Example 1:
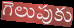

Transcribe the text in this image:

గెలుపుకు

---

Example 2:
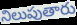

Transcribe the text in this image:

నిలుపుతారు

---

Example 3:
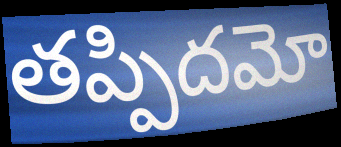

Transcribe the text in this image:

తప్పిదమో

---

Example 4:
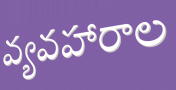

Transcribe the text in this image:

వ్యవహారాల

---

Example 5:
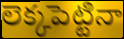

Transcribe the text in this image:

లెక్కపెట్టినా